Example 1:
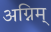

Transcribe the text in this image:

अग्निम्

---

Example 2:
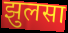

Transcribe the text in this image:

झुलसा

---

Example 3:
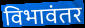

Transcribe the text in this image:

विभावंतर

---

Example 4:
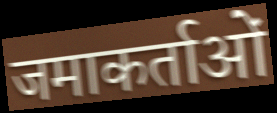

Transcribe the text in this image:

जमाकर्ताओं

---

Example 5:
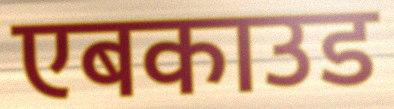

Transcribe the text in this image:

एबकाउड